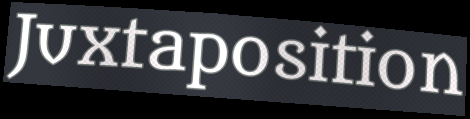
Juxtaposition